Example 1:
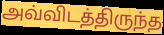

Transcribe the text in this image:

அவ்விடத்திருந்த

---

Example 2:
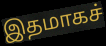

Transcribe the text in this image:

இதமாகச்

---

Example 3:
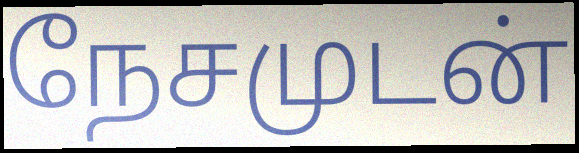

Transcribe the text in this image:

நேசமுடன்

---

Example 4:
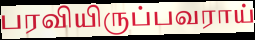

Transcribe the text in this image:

பரவியிருப்பவராய்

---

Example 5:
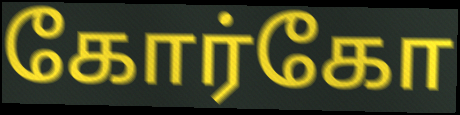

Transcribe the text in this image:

கோர்கோ